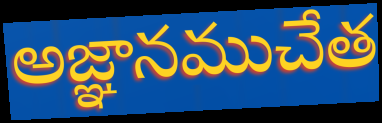
అజ్ఞానముచేత